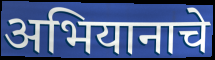
अभियानाचे